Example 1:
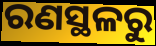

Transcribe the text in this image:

ରଣସ୍ଥଳରୁ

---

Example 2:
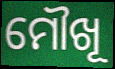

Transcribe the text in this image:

ମୌଖୂ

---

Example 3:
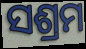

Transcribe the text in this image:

ସଶ୍ରମ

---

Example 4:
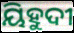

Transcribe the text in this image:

ୟିହୁଦୀ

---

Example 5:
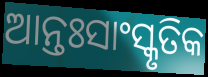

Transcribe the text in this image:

ଆନ୍ତଃସାଂସ୍କୃତିକ